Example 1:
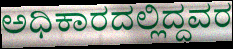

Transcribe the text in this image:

ಅಧಿಕಾರದಲ್ಲಿದ್ದವರ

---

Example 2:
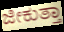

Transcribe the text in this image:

ಜೀಕುತ್ತಾ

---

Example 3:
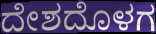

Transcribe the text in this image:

ದೇಶದೊಳಗ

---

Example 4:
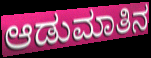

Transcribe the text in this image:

ಆಡುಮಾತಿನ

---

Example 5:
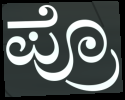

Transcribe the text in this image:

ಪ್ರೊ